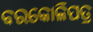
ବରକୋଳିପତ୍ର